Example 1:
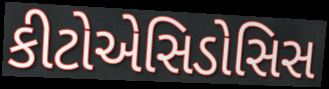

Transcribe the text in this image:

કીટોએસિડોસિસ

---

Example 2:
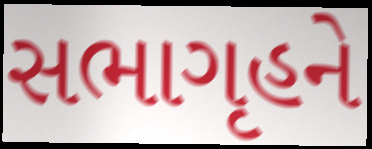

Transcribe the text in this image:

સભાગૃહને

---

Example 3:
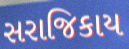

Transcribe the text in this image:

સરાજિકાય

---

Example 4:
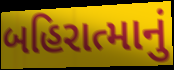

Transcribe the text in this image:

બહિરાત્માનું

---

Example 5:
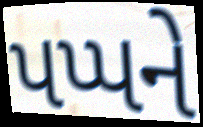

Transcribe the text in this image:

પપ્પને